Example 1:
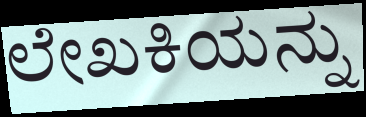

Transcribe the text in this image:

ಲೇಖಕಿಯನ್ನು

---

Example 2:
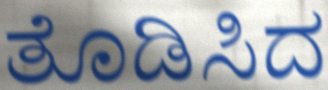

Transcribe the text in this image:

ತೊಡಿಸಿದ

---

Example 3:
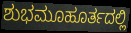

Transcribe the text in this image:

ಶುಭಮೂಹೂರ್ತದಲ್ಲಿ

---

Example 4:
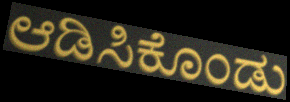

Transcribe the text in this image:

ಆಡಿಸಿಕೊಂಡು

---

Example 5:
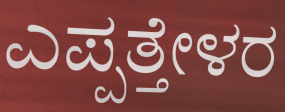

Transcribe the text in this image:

ಎಪ್ಪತ್ತೇಳರ